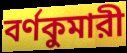
বর্ণকুমারী